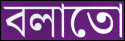
বলাতো